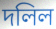
দলিল